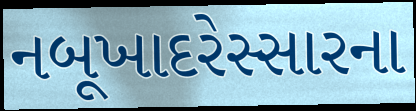
નબૂખાદરેસ્સારના